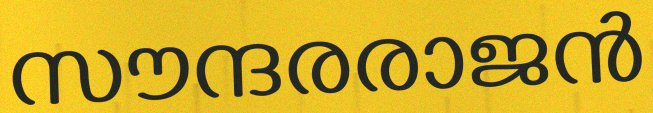
സൗന്ദരരാജൻ